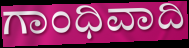
ಗಾಂಧಿವಾದಿ